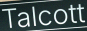
Talcott